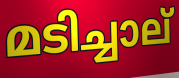
മടിച്ചാല്